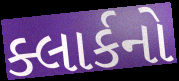
ક્લાર્કનો